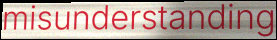
misunderstanding